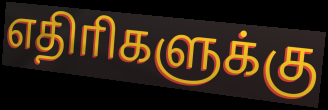
எதிரிகளுக்கு